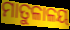
ମାତୁଳାଳୟ